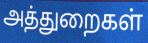
அத்துறைகள்